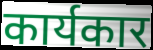
कार्यकार